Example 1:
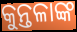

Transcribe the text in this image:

କୁନ୍ତଳାଙ୍କ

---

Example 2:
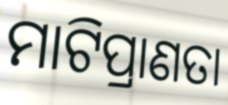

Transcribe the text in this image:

ମାଟିପ୍ରାଣତା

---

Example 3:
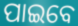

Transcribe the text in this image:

ପାଇବେ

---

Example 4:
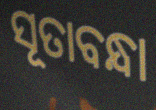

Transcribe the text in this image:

ସୂତାବନ୍ଧା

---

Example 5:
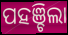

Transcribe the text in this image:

ପହଞ୍ଚିଲା